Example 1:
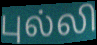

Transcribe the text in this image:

புல்லி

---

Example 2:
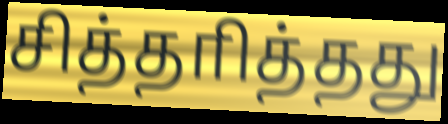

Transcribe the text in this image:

சித்தரித்தது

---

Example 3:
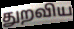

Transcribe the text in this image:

துறவிய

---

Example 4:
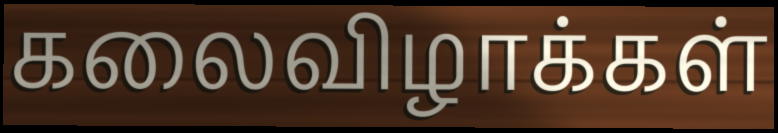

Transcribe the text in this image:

கலைவிழாக்கள்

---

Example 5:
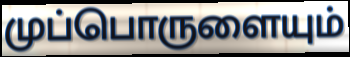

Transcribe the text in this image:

முப்பொருளையும்